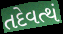
તદેવત્થં